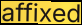
affixed